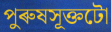
পুৰুষসূক্তটো